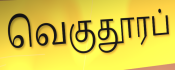
வெகுதூரப்